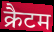
क्रैटम